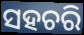
ସହଚରି